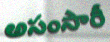
అసంసారీ